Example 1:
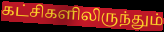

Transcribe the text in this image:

கட்சிகளிலிருந்தும்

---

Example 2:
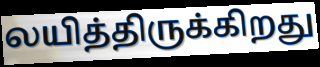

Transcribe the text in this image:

லயித்திருக்கிறது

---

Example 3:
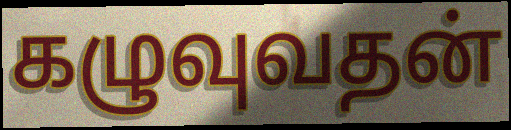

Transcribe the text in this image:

கழுவுவதன்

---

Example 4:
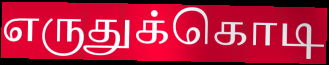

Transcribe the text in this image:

எருதுக்கொடி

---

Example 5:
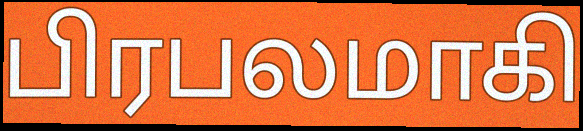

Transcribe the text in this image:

பிரபலமாகி